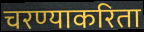
चरण्याकरिता